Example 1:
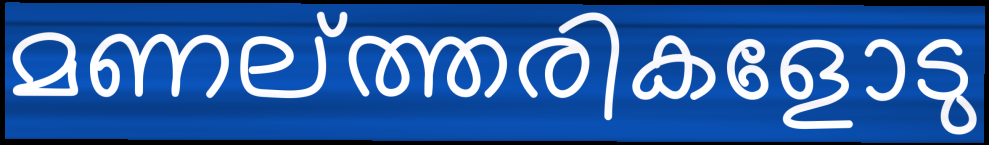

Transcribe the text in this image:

മണല്ത്തരികളോടു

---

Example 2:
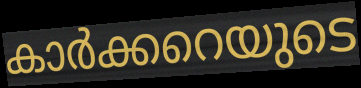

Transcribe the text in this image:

കാർക്കറെയുടെ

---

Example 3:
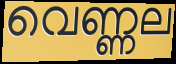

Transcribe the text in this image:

വെണ്ണല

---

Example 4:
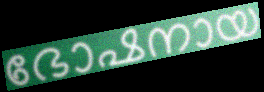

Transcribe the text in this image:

ഭോഷനായ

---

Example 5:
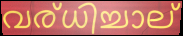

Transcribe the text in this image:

വര്ധിച്ചാല്